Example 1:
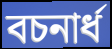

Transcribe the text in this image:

বচনার্ধ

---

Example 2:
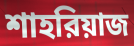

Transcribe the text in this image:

শাহরিয়াজ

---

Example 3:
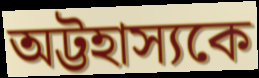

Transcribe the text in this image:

অট্টহাস্যকে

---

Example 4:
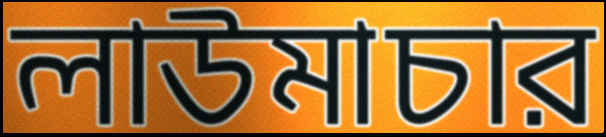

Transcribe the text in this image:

লাউমাচার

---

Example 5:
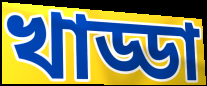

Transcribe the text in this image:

খাড্ডা